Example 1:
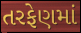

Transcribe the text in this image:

તરફેણમાં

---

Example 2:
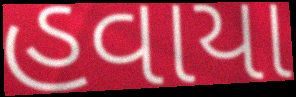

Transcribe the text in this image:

હવાયા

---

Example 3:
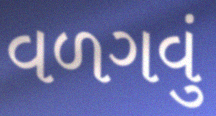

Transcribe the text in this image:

વળગવું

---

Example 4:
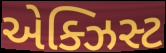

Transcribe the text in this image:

એક્ઝિસ્ટ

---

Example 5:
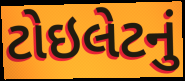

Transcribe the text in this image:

ટોઇલેટનું